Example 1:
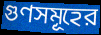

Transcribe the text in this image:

গুণসমূহের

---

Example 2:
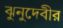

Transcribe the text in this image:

ঝুনুদেবীর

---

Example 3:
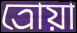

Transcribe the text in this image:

ত্রোয়া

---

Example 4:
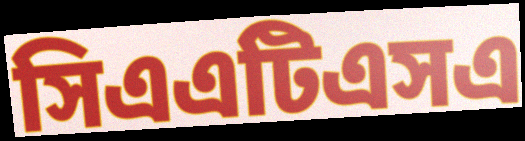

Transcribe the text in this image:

সিএএটিএসএ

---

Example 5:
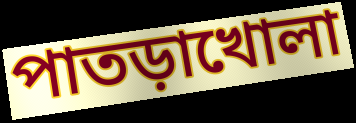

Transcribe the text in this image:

পাতড়াখোলা